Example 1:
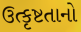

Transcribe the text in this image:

ઉત્કૃષ્ટતાનો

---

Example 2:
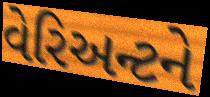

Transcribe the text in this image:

વેરિઅન્ટને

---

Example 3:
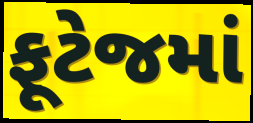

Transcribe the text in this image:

ફૂટેજમાં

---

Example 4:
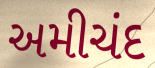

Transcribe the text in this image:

અમીચંદ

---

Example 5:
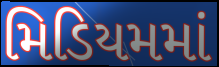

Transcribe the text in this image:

મિડિયમમાં